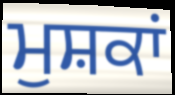
ਮੁਸ਼ਕਾਂ